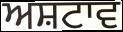
ਅਸ਼ਟਾਵ